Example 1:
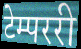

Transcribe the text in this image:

टेम्पररी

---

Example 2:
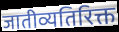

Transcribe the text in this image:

जातीव्यतिरिक्त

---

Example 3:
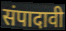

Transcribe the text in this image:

संपादावी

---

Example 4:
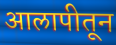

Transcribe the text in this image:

आलापीतून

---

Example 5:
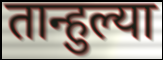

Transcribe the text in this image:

तान्हुल्या